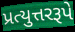
પ્રત્યુત્તરરૂપે